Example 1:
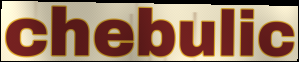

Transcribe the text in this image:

chebulic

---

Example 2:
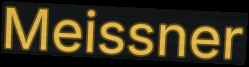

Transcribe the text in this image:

Meissner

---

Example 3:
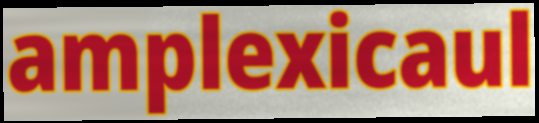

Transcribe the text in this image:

amplexicaul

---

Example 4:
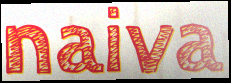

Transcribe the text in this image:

naiva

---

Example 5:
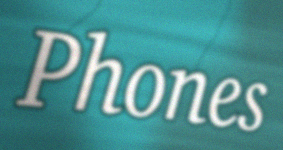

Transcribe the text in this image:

Phones